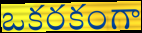
ఒకరకంగా